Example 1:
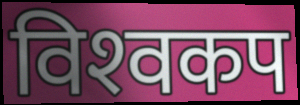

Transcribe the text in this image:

विश्‍वकप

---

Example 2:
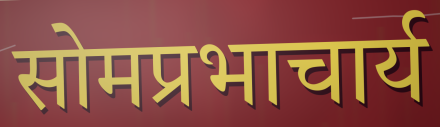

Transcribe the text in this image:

सोमप्रभाचार्य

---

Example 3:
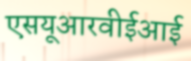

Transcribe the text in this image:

एसयूआरवीईआई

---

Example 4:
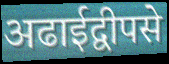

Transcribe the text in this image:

अढाईद्वीपसे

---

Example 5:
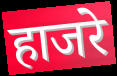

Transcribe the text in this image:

हाजरे